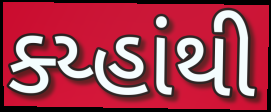
ક્ય્હાંથી